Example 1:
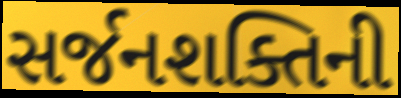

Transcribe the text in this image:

સર્જનશક્તિની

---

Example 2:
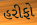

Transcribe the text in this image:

હરીફો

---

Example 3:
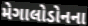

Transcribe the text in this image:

મેગાલોડોનના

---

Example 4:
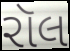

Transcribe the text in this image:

રૉલ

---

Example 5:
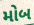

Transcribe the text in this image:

મોબ